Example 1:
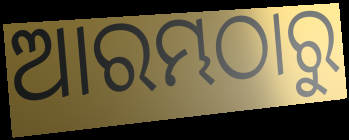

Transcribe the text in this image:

ଆରମ୍ଭଠାରୁ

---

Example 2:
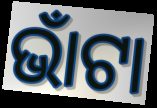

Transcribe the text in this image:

ଭାଁଟା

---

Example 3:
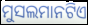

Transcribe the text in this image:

ମୁସଲମାନଟିଏ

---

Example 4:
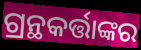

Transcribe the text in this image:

ଗ୍ରନ୍ଥକର୍ତ୍ତାଙ୍କର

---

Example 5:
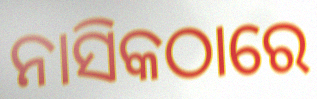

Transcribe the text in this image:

ନାସିକଠାରେ